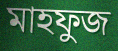
মাহফুজ